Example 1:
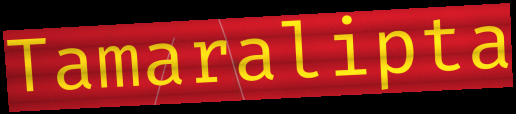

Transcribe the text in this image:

Tamaralipta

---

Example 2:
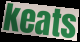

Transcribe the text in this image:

keats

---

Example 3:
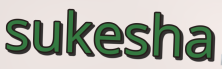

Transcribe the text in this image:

sukesha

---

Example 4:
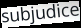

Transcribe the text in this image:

subjudice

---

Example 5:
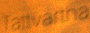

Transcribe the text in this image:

Tattvartha